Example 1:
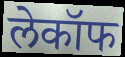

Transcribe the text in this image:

लेकॉफ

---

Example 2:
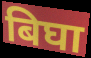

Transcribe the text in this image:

बिघा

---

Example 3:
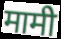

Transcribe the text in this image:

मामी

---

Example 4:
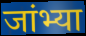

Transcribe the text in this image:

जांभ्या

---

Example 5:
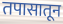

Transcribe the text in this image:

तपासातून